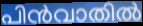
പിൻവാതിൽ